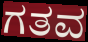
ಗತವ